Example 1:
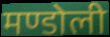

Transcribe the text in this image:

मण्डोली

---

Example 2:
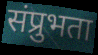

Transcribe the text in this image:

संप्रुभता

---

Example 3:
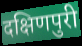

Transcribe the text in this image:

दक्षिणपुरी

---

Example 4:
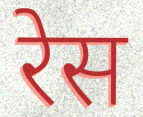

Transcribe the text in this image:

रेस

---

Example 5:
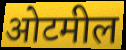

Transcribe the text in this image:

ओटमील